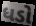
ધડો